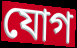
যোগ